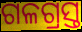
ଗଳଗ୍ରସ୍ତ